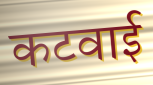
कटवाई